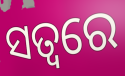
ସତ୍ଵରେ